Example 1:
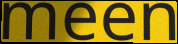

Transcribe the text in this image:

meen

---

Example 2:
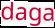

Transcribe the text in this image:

daga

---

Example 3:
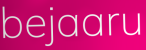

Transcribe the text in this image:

bejaaru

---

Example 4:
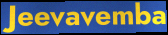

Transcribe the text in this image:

Jeevavemba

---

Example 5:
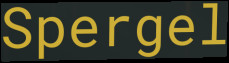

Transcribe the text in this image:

Spergel